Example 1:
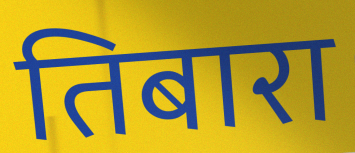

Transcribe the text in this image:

तिबारा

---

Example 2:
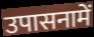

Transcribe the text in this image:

उपासनामें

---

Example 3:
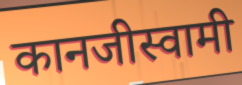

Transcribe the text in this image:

कानजीस्वामी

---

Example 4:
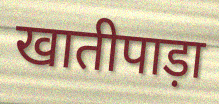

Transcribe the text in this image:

खातीपाड़ा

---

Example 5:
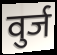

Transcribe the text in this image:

वुर्ज